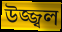
উজ্জ্বল